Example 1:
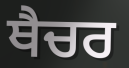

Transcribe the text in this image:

ਥੈਚਰ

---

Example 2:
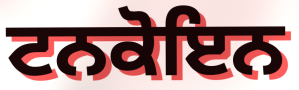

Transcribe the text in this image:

ਟਨਕੋਇਨ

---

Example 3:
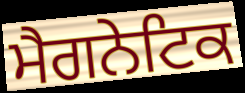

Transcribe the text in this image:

ਮੈਗਨੇਟਿਕ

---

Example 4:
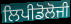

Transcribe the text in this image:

ਲਿਪੀਡੋਲੋਜੀ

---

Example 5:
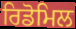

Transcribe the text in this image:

ਰਿਡੋਮਿਲ